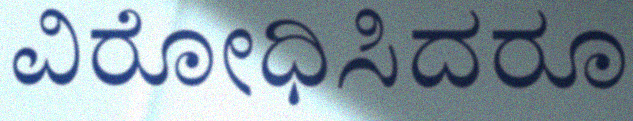
ವಿರೋಧಿಸಿದರೂ